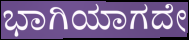
ಭಾಗಿಯಾಗದೇ